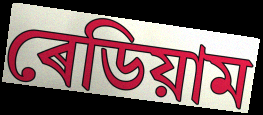
ৰেডিয়াম